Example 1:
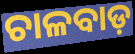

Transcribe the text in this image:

ଚାଳବାଡ଼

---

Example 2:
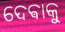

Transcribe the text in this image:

ଦେଵାକୁ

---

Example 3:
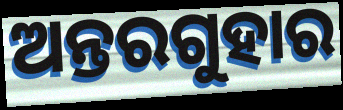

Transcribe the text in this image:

ଅନ୍ତରଗୁହାର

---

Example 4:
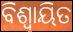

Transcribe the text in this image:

ବିଶ୍ବାୟିତ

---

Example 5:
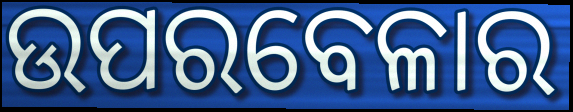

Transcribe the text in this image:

ଉପରବେଳାର